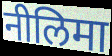
नीलिमा